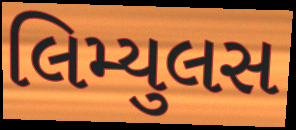
લિમ્યુલસ